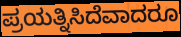
ಪ್ರಯತ್ನಿಸಿದೆವಾದರೂ